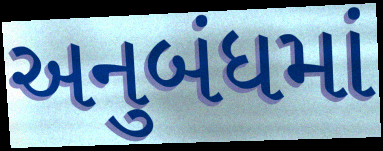
અનુબંધમાં